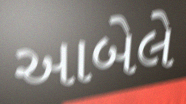
આબેલે